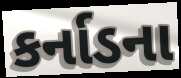
કર્નાડના